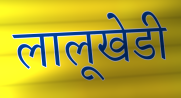
लालूखेडी